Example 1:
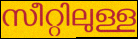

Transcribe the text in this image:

സീറ്റിലുള്ള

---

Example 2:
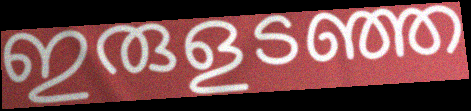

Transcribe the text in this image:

ഇരുളടഞ്ഞ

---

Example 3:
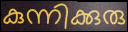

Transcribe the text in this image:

കുന്നിക്കുരു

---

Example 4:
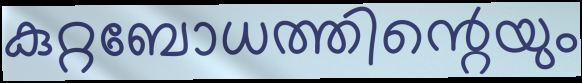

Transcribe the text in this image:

കുറ്റബോധത്തിന്റെയും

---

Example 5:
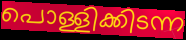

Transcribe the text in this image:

പൊള്ളിക്കിടന്ന